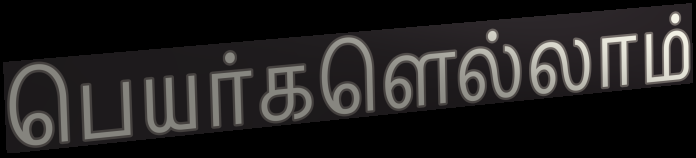
பெயர்களெல்லாம்